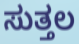
ಸುತ್ತಲ